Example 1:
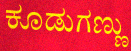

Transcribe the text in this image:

ಕೂಡುಗಣ್ಣು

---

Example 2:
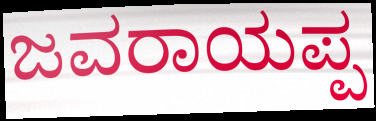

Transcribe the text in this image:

ಜವರಾಯಪ್ಪ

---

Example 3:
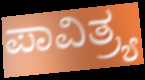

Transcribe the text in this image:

ಪಾವಿತ್ರ್ಯ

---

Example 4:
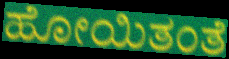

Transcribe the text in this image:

ಹೋಯಿತಂತೆ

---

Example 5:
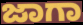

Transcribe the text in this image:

ಜಾಗಾ